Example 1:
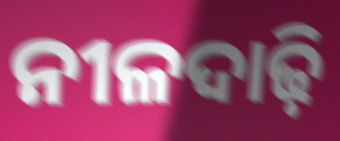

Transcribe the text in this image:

ନୀଳଦାଢ଼ି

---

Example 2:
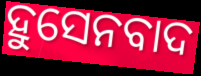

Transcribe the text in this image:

ହୁସେନବାଦ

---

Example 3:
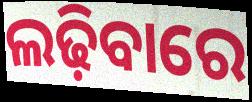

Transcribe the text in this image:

ଲଢ଼ିବାରେ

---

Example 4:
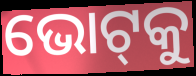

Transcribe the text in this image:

ଭୋଟ୍‍କୁ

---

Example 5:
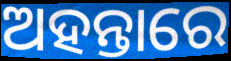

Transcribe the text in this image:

ଅହନ୍ତାରେ